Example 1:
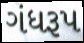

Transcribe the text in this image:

ગંધરૂપ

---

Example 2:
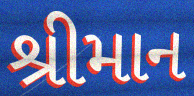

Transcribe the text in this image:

શ્રીમાન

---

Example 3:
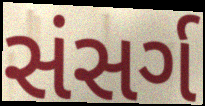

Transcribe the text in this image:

સંસર્ગ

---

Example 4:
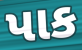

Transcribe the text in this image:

પાક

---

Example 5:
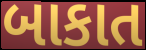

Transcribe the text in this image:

બાકાત